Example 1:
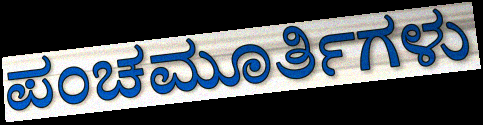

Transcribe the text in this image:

ಪಂಚಮೂರ್ತಿಗಳು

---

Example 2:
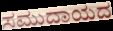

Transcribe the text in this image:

ಸಮುದಾಯದ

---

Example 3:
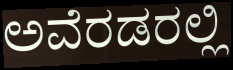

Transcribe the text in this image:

ಅವೆರಡರಲ್ಲಿ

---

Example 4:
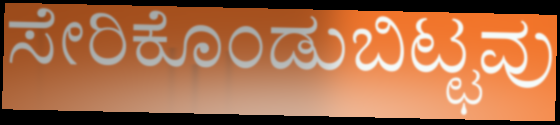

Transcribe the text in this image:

ಸೇರಿಕೊಂಡುಬಿಟ್ಟವು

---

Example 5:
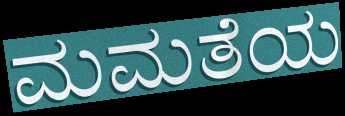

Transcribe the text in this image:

ಮಮತೆಯ